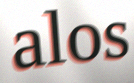
alos